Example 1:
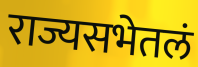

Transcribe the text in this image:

राज्यसभेतलं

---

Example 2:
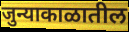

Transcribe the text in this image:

जुन्याकाळातील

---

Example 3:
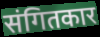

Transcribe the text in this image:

संगितकार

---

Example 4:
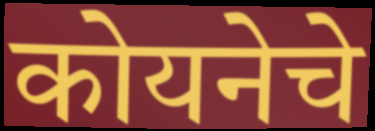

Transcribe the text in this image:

कोयनेचे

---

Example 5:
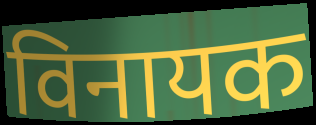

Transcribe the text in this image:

विनायक